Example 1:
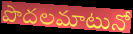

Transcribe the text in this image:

పొదలమాటునో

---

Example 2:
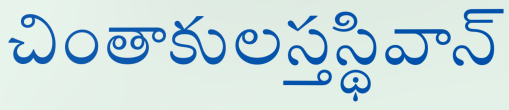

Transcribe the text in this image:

చింతాకులస్తస్థివాన్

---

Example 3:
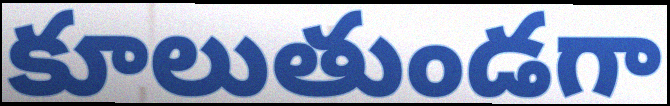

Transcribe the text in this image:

కూలుతుండగా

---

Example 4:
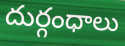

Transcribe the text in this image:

దుర్గంధాలు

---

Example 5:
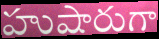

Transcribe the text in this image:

హుషారుగా